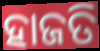
ହାଜତି